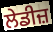
ਲੇਡੀਜ਼